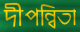
দীপন্বিতা